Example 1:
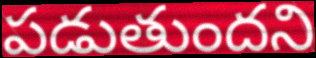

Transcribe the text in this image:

పడుతుందని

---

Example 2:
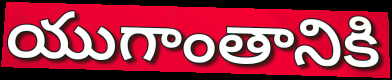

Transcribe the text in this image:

యుగాంతానికి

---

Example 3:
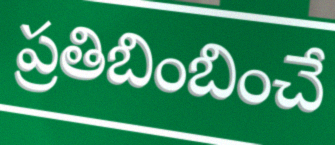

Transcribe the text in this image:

ప్రతిబింబించే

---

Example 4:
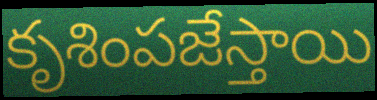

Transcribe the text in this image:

కృశింపజేస్తాయి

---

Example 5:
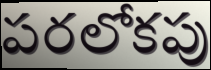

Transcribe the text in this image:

పరలోకపు